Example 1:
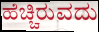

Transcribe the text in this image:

ಹೆಚ್ಚಿರುವದು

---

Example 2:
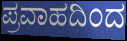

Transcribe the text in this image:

ಪ್ರವಾಹದಿಂದ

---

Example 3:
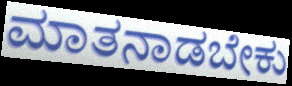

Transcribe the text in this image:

ಮಾತನಾಡಬೇಕು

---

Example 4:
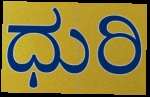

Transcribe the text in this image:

ಧುರಿ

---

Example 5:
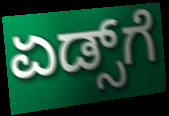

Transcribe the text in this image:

ಏಡ್ಸ್‌ಗೆ